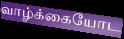
வாழ்க்கையோட